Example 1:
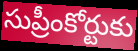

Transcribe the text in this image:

సుప్రీంకోర్టుకు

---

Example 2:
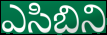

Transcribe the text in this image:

ఎసిబిని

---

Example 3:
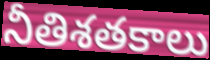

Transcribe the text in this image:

నీతిశతకాలు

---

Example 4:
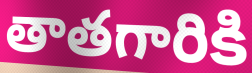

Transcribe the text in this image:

తాతగారికి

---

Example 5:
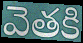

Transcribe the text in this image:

వెతకి